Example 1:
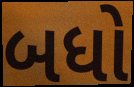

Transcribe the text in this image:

બધો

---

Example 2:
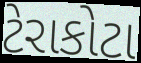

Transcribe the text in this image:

ટેરાકોટા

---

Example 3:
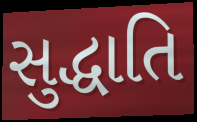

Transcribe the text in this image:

સુદ્ધાતિ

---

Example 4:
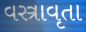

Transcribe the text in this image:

વસ્ત્રાવૃતા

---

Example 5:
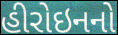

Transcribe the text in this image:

હીરોઇનનો